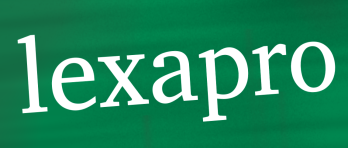
lexapro